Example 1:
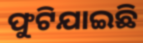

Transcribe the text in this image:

ଫୁଟିଯାଇଛି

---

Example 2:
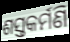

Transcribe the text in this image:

ଶସ୍ତକର୍ମଣି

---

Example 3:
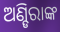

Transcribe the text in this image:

ଅଣ୍ଡିରାଙ୍କ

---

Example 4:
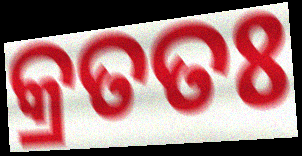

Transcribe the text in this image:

କ୍ରତତଃ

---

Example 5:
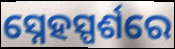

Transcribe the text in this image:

ସ୍ନେହସ୍ପର୍ଶରେ